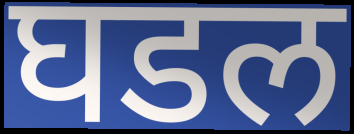
घडल